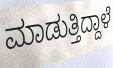
ಮಾಡುತ್ತಿದ್ದಾಳೆ